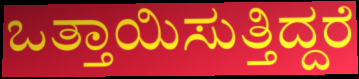
ಒತ್ತಾಯಿಸುತ್ತಿದ್ದರೆ